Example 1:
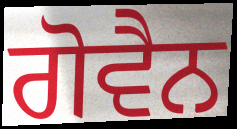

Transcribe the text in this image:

ਗੋਵੈਨ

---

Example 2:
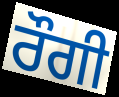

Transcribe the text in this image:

ਰੌਗੀ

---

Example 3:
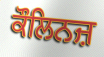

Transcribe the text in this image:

ਕੌਲਿਨਜ਼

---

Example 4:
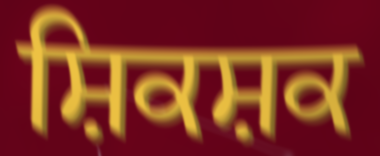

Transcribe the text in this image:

ਸ਼ਿਕਸ਼ਕ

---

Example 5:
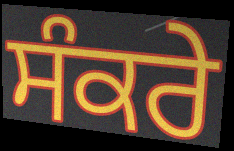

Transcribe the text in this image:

ਸੰਕਰੇ